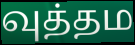
வுத்தம